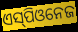
ଏସ୍‌ପିଓନେଜ